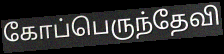
கோப்பெருந்தேவி